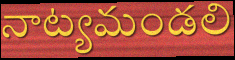
నాట్యమండలి